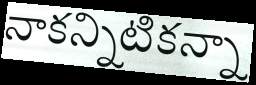
నాకన్నిటికన్నా